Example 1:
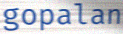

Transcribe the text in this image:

gopalan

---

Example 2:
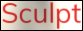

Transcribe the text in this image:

Sculpt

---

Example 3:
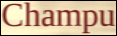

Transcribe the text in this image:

Champu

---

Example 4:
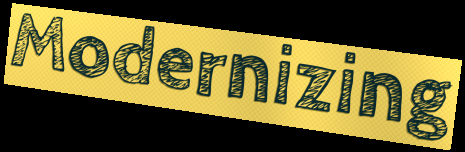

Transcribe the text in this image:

Modernizing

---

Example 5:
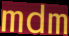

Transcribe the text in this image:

mdm